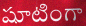
షూటింగా